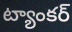
ట్యాంకర్